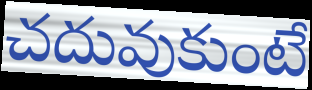
చదువుకుంటే